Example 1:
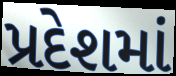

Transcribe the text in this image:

પ્રદેશમાં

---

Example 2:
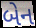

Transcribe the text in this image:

બેન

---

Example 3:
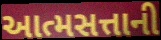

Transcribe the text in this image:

આત્મસત્તાની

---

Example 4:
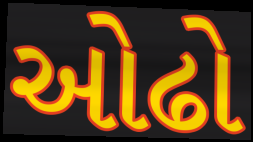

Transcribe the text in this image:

ઓઢો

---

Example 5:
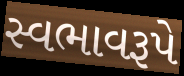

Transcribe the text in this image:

સ્વભાવરૂપે